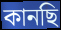
কানছি